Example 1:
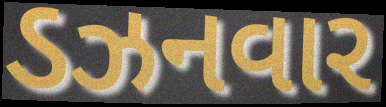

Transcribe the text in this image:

ડઝનવાર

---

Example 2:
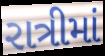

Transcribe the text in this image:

રાત્રીમાં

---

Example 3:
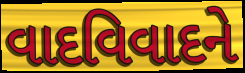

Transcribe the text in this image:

વાદવિવાદને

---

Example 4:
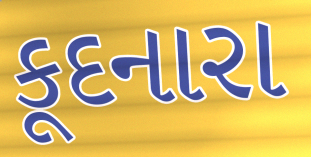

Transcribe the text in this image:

કૂદનારા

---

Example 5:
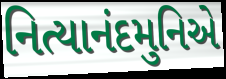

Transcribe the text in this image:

નિત્યાનંદમુનિએ